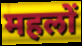
महलों